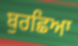
ਬੁਰਛਿਆ